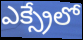
ఎక్స్రేలో